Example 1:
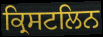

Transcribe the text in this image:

ਕ੍ਰਿਸਟਲਿਨ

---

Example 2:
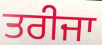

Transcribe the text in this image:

ਤਰੀਜਾ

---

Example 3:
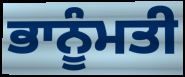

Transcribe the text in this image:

ਭਾਨੂੰਮਤੀ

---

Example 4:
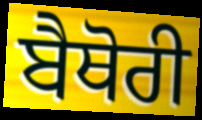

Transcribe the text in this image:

ਬੈਥੋਰੀ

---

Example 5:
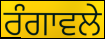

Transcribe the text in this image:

ਰੰਗਾਵਲੇ